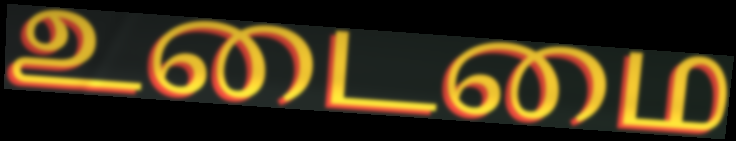
உடைமை